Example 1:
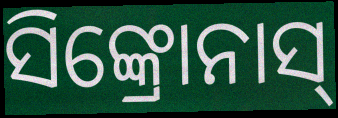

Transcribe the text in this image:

ସିଙ୍କ୍ରୋନାସ୍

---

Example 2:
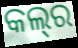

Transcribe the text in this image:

କଲ୍‌ର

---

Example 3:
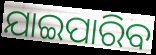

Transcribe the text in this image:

ଯାଇପାରିବ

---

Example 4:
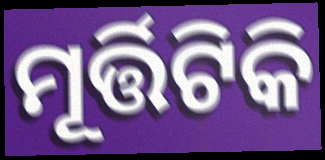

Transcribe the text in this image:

ମୂର୍ତ୍ତିଟିକି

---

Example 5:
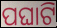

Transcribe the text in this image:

ପଘାଟି